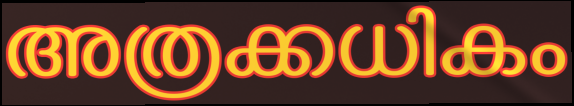
അത്രക്കധികം